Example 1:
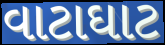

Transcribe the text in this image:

વાટાઘાટ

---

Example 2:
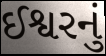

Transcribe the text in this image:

ઈશ્વરનું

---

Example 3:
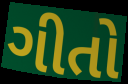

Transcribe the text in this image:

ગીતો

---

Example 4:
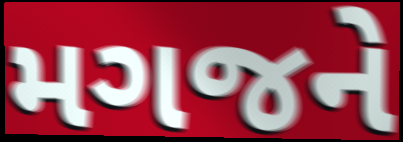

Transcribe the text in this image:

મગજને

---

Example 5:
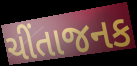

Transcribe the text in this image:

ચીંતાજનક